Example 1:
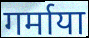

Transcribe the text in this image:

गर्माया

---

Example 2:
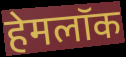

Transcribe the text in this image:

हेमलॉक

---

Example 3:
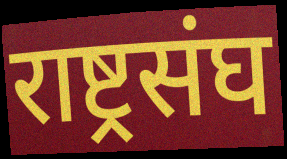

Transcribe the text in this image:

राष्ट्रसंघ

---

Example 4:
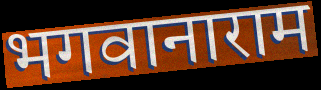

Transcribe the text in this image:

भगवानाराम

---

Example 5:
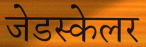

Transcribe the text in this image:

जेडस्केलर